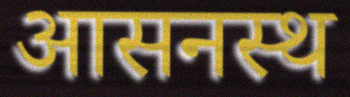
आसनस्थ